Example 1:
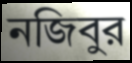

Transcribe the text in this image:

নজিবুর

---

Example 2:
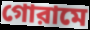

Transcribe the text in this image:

গোরামে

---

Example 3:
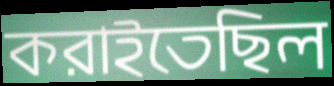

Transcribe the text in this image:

করাইতেছিল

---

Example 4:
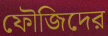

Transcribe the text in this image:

ফৌজিদের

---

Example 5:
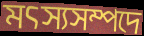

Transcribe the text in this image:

মৎস্যসম্পদে